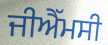
ਜੀਐੱਮਸੀ